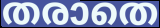
തരാതെ